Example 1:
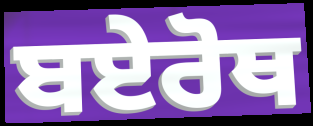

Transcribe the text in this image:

ਬਏਰੋਥ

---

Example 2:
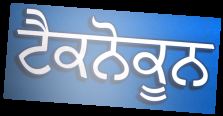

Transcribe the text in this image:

ਟੈਕਨੋਕੂਨ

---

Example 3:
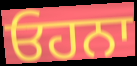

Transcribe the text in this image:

ਓਹਨਾ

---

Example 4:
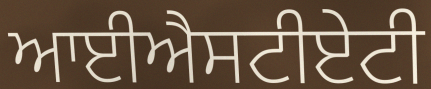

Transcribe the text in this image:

ਆਈਐਸਟੀਏਟੀ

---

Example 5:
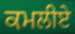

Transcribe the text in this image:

ਕਮਲੀਏ